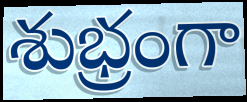
శుభ్రంగా